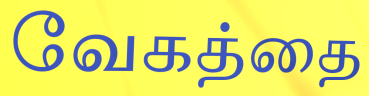
வேகத்தை